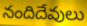
నందిదేవులు